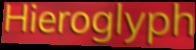
Hieroglyph